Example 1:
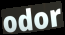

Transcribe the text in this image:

odor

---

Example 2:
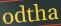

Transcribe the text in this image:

odtha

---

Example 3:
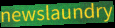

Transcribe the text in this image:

newslaundry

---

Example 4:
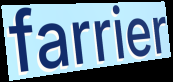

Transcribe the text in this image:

farrier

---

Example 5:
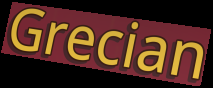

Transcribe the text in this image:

Grecian